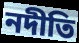
নদীতি